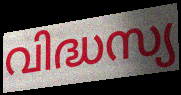
വിദ്ധസ്യ